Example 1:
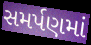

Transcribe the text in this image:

સમર્પણમાં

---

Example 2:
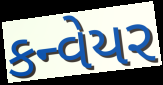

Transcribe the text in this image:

કન્વેયર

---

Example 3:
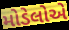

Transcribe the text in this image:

મોડેલોએ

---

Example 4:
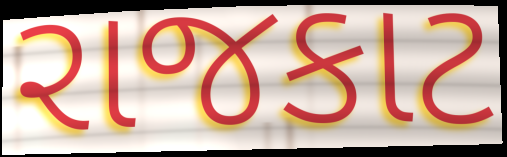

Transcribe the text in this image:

રાજકાટ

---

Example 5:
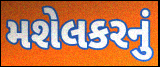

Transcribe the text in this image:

મશેલકરનું